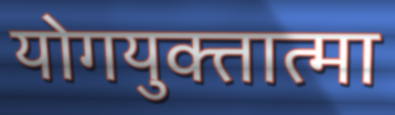
योगयुक्तात्मा